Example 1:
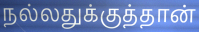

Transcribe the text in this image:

நல்லதுக்குத்தான்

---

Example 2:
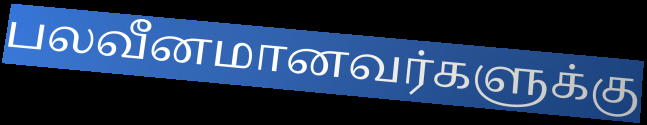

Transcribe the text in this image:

பலவீனமானவர்களுக்கு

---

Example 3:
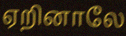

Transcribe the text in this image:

ஏறினாலே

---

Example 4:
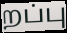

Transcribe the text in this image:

றப்பு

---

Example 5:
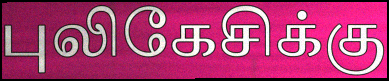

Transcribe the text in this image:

புலிகேசிக்கு